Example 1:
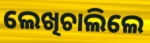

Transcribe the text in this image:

ଲେଖିଚାଲିଲେ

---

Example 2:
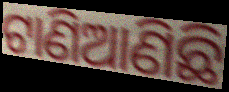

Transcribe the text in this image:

ଟାଣିଆଣିଛି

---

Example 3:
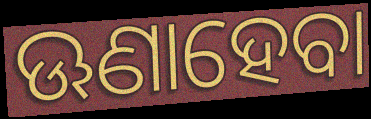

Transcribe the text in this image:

ଊଣାହେବା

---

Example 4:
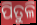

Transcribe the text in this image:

ପିତୁଳି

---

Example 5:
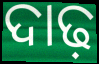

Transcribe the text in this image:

ଦାଢ଼